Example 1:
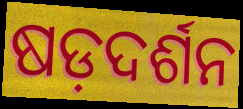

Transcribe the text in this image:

ଷଡ଼ଦର୍ଶନ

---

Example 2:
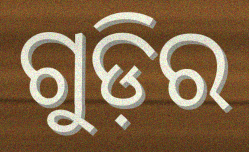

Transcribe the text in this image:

ଗୁଡ଼ିର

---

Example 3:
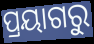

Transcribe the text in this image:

ପ୍ରୟାଗରୁ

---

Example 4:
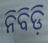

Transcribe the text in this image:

ନିବିଡ଼ି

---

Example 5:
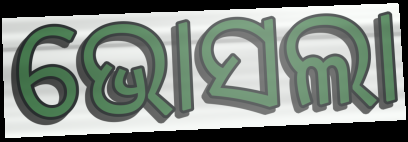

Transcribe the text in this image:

ଭୋସଲା